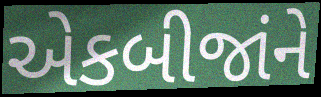
એકબીજાંને